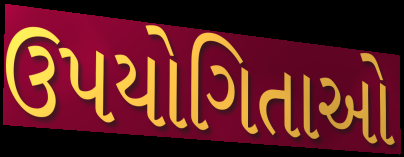
ઉપયોગિતાઓ